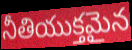
నీతియుక్తమైన